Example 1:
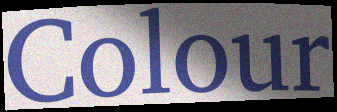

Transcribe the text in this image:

Colour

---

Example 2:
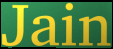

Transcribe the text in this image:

Jain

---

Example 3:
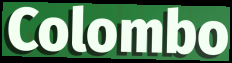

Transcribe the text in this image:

Colombo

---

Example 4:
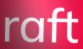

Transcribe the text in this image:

raft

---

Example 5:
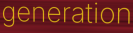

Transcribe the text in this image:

generation